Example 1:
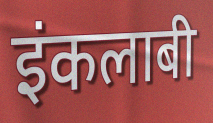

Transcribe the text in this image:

इंकलाबी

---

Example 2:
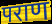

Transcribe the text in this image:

पराण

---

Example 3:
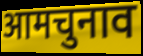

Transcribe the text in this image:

आमचुनाव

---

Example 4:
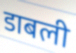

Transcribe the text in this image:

डाबली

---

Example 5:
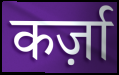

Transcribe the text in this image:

कर्ज़ा